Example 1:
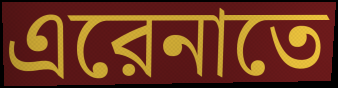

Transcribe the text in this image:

এরেনাতে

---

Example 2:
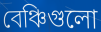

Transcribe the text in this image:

বেঞ্চিগুলো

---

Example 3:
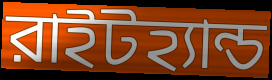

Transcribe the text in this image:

রাইটহ্যান্ড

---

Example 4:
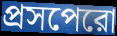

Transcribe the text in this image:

প্রসপেরো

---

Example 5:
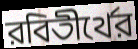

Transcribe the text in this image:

রবিতীর্থের